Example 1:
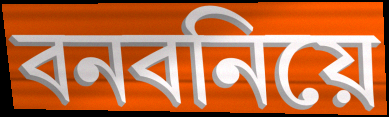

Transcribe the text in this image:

বনবনিয়ে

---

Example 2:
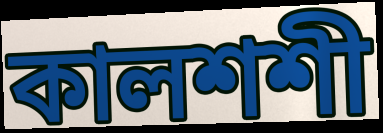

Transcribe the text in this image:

কালশশী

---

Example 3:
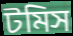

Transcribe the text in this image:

টমিস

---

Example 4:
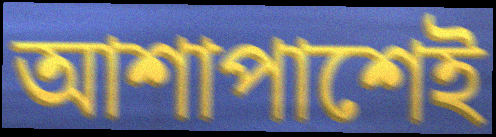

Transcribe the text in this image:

আশাপাশেই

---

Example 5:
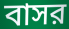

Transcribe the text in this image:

বাসর